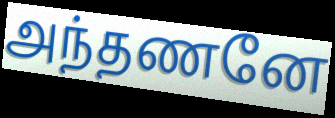
அந்தணனே